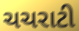
ચચરાટી